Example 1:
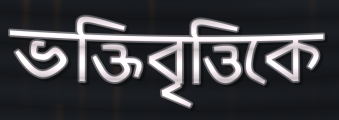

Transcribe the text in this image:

ভক্তিবৃত্তিকে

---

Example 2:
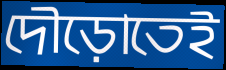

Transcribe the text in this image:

দৌড়োতেই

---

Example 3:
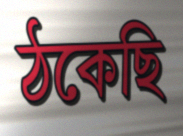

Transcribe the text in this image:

ঠকেছি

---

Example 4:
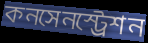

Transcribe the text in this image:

কনসেনস্ট্রেশন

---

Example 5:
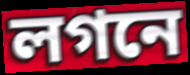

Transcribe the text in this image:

লগনে